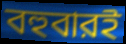
বহুবারই